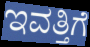
ಇವತ್ತಿಗೆ